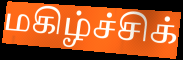
மகிழ்ச்சிக்